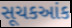
સૂચકઆંક